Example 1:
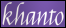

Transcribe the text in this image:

khanto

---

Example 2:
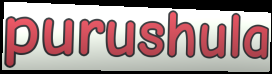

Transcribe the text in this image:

purushula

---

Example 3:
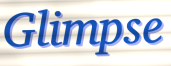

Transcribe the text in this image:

Glimpse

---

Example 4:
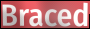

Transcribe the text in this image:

Braced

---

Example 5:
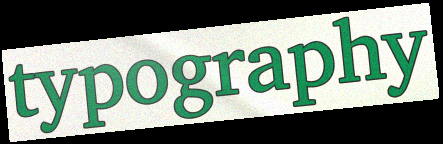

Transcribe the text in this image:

typography